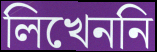
লিখেননি